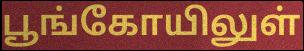
பூங்கோயிலுள்